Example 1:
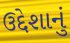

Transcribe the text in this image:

ઉદ્દેશાનું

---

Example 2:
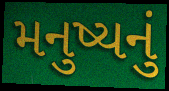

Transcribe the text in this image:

મનુષ્યનું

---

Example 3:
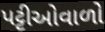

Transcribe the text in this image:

પટ્ટીઓવાળો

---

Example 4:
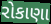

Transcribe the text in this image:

રોકાણા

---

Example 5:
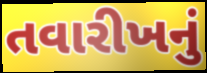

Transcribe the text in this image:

તવારીખનું